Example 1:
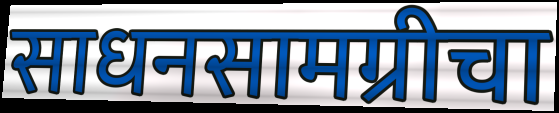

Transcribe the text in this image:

साधनसामग्रीचा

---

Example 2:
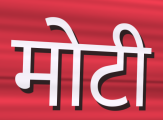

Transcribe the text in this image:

मोटी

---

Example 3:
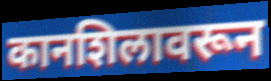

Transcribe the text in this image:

कानशिलावरून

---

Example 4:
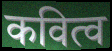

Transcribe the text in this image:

कवित्व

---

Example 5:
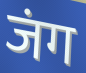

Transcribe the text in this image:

जंग